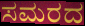
ಸಮರದ